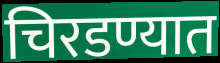
चिरडण्यात